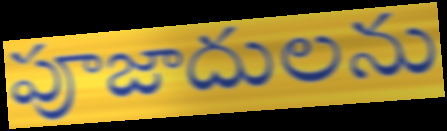
పూజాదులను